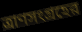
ত্রাণসংগ্রহের